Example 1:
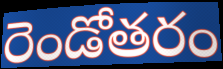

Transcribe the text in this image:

రెండోతరం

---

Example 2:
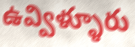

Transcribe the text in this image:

ఉవ్విళ్ళూరు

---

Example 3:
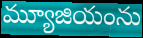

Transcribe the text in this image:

మ్యూజియంను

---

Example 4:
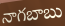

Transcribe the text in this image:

నాగబాబు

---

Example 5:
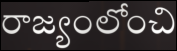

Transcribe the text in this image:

రాజ్యంలోంచి